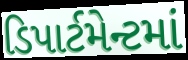
ડિપાર્ટમેન્ટમાં